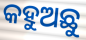
କହୁଅଛୁ